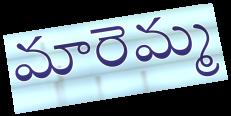
మారెమ్మ